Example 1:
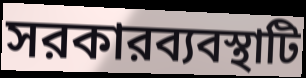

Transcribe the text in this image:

সরকারব্যবস্থাটি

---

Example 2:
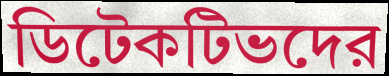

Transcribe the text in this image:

ডিটেকটিভদের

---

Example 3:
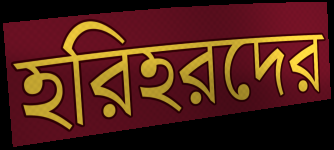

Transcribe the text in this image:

হরিহরদের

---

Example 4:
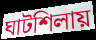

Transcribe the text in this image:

ঘাটশিলায়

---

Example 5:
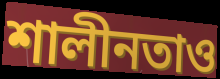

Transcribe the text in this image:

শালীনতাও